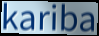
kariba